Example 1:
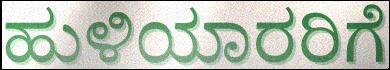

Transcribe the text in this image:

ಹುಳಿಯಾರರಿಗೆ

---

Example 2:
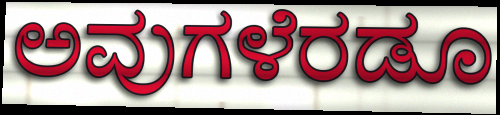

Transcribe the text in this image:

ಅವುಗಳೆರಡೂ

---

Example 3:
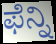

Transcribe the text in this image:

ಫೆನ್ನಿ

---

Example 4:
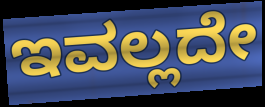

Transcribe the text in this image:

ಇವಲ್ಲದೇ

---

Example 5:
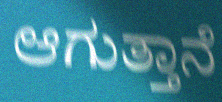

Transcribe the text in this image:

ಆಗುತ್ತಾನೆ